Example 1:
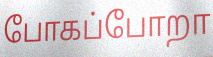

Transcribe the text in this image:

போகப்போறா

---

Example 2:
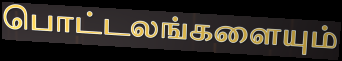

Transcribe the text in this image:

பொட்டலங்களையும்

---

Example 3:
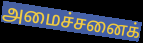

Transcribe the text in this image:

அமைச்சனைக்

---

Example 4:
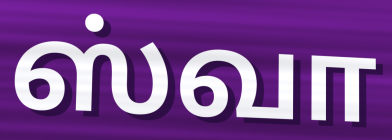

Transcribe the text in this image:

ஸ்வா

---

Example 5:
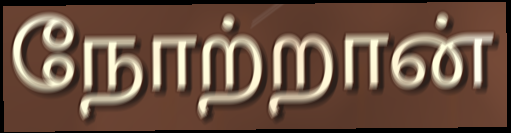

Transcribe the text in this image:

நோற்றான்